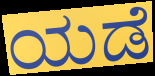
ಯಡೆ